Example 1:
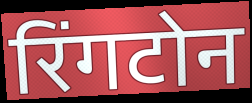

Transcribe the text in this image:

रिंगटोन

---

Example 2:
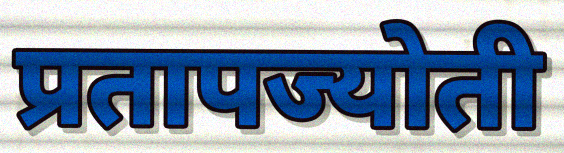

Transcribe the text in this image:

प्रतापज्योती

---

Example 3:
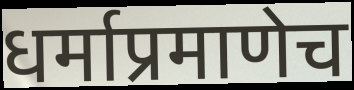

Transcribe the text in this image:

धर्माप्रमाणेच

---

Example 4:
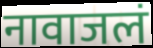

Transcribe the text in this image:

नावाजलं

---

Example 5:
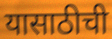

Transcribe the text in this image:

यासाठीची